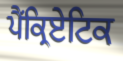
ਪੈਂਕ੍ਰਿਏਟਿਕ